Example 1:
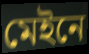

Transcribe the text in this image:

মেইনে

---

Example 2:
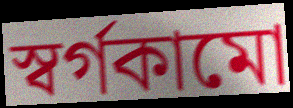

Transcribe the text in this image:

স্বর্গকামো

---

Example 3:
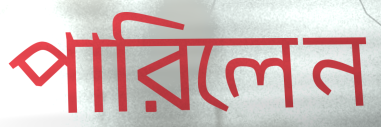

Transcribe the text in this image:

পারিলেন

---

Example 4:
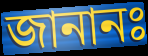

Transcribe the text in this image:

জানানঃ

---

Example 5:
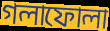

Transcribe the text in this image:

গলাফোলা